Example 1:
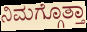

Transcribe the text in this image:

ನಿಮಗ್ಗೊತ್ತಾ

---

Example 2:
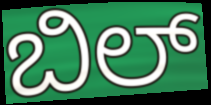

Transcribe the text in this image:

ಬಿಲ್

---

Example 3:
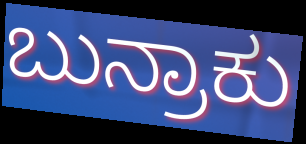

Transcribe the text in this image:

ಬುನ್ರಾಕು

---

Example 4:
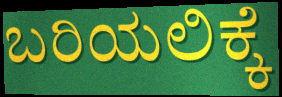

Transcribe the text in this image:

ಬರಿಯಲಿಕ್ಕೆ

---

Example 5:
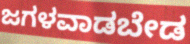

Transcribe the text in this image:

ಜಗಳವಾಡಬೇಡ